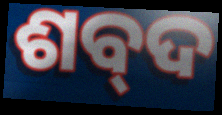
ଶବ୍‌ଦ